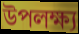
উপলক্ষ্য